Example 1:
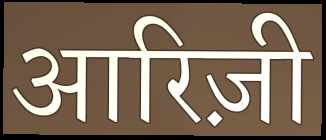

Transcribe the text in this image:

आरिज़ी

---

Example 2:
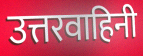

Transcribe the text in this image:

उत्तरवाहिनी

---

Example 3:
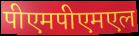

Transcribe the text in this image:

पीएमपीएमएल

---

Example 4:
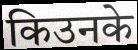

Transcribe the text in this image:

किउनके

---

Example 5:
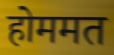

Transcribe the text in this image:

होममत